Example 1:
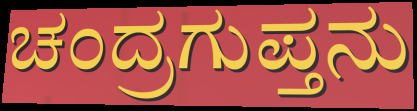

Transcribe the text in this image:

ಚಂದ್ರಗುಪ್ತನು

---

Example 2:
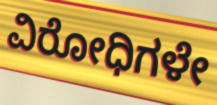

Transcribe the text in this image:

ವಿರೋಧಿಗಳೇ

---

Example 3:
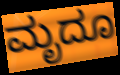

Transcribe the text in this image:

ಮೃದೂ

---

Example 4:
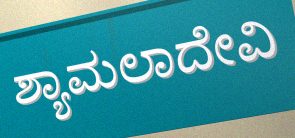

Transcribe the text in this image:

ಶ್ಯಾಮಲಾದೇವಿ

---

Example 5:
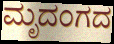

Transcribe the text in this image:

ಮೃದಂಗದ